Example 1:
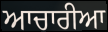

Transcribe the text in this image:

ਆਚਾਰੀਆ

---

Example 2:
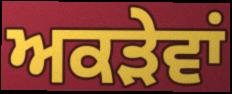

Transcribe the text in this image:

ਅਕੜੇਵਾਂ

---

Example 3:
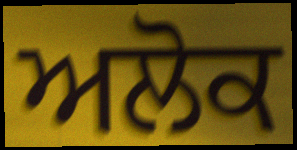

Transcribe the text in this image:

ਅਲੋਕ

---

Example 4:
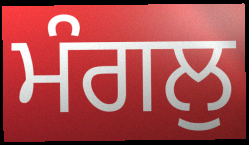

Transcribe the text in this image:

ਮੰਗਲੁ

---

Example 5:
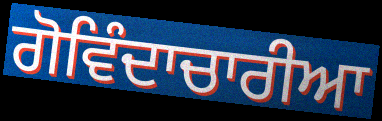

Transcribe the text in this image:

ਗੋਵਿੰਦਾਚਾਰੀਆ